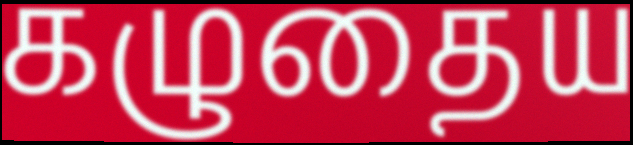
கழுதைய